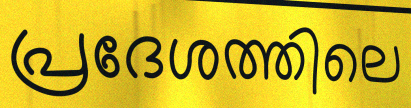
പ്രദേശത്തിലെ